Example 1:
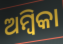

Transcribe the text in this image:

ଅମ୍ବିକା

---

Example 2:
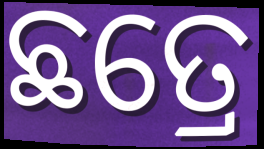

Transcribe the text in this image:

ଛତ୍ରେ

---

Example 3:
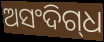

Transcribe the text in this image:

ଅସଂଦିଗ୍‌ଧ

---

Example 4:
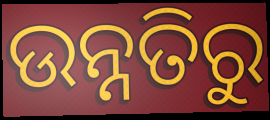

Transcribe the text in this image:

ଉନ୍ନତିରୁ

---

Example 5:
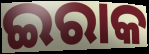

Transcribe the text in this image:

ଇରାକ